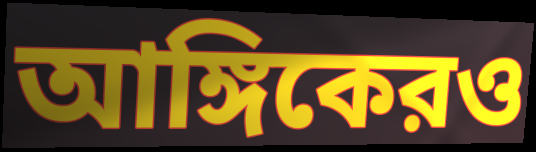
আঙ্গিকেরও